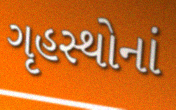
ગૃહસ્થોનાં